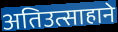
अतिउत्साहाने